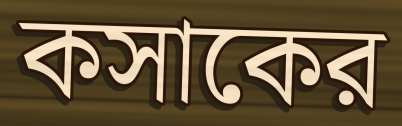
কসাকের